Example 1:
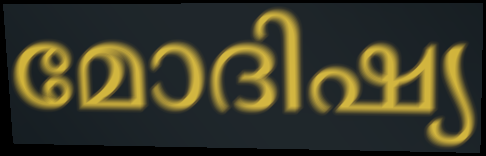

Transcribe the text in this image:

മോദിഷ്യ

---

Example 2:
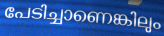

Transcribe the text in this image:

പേടിച്ചാണെങ്കിലും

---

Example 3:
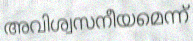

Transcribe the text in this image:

അവിശ്വസനീയമെന്ന്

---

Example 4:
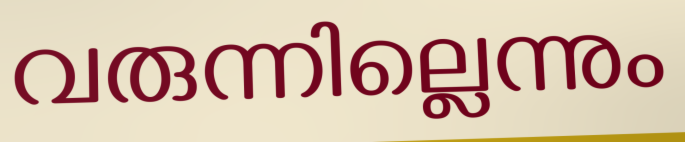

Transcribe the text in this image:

വരുന്നില്ലെന്നും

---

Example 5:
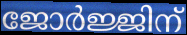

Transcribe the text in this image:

ജോർജ്ജിന്